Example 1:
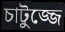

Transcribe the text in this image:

চাটুজ্জে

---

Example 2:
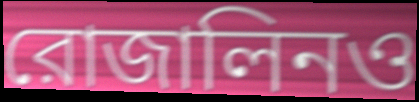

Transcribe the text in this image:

রোজালিনও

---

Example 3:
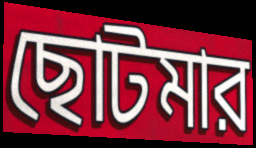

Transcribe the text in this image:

ছোটমার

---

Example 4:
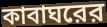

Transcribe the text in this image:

কাবাঘরের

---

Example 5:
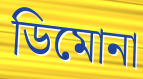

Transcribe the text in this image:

ডিমোনা